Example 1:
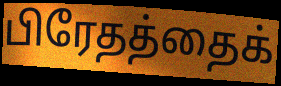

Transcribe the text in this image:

பிரேதத்தைக்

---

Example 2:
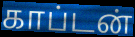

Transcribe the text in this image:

காப்டன்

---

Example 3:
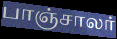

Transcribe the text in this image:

பாஞ்சாலர்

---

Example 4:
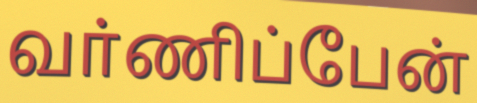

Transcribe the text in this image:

வர்ணிப்பேன்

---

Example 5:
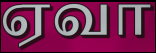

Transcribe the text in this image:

ஏவா